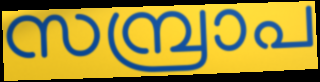
സമ്പ്രാപ